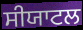
ਸੀਯਾਟਲ